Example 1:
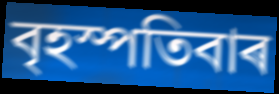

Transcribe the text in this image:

বৃহস্পতিবাৰ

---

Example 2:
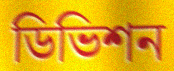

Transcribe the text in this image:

ডিভিশন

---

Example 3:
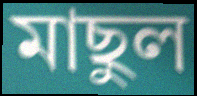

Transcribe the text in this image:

মাছুল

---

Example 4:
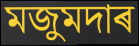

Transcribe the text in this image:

মজুমদাৰ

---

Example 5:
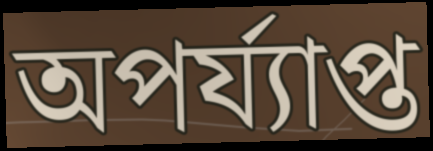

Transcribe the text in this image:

অপৰ্য্যাপ্ত